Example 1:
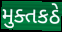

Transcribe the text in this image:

મુક્તકઠે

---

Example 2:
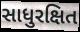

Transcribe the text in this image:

સાધુરક્ષિત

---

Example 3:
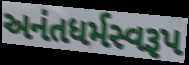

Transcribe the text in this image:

અનંતધર્મસ્વરૂપ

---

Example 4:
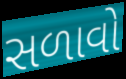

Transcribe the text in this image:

સળાવો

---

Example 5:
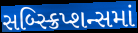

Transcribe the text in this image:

સબ્સ્ક્રિપ્શન્સમાં